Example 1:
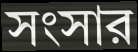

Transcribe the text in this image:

সংসার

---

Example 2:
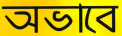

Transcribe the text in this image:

অভাবে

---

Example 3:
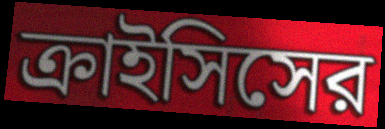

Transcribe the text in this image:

ক্রাইসিসের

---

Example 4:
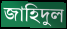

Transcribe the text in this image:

জাহিদুল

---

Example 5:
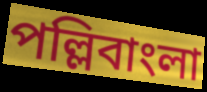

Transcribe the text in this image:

পল্লিবাংলা